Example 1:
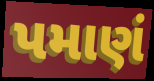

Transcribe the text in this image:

પમાણં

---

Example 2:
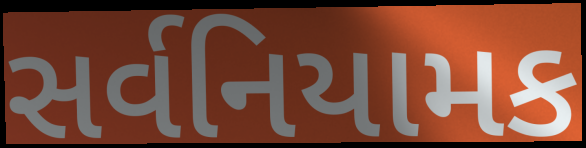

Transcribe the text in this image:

સર્વનિયામક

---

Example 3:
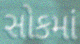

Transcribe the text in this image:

સોકમાં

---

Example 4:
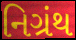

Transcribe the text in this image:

નિગ્રંથ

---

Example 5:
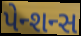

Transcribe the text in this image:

પેન્શન્સ